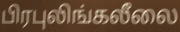
பிரபுலிங்கலீலை